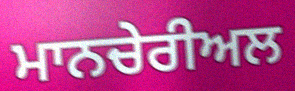
ਮਾਨਚੇਰੀਅਲ